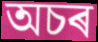
অচৰ